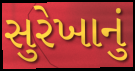
સુરેખાનું